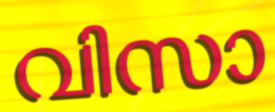
വിസാ